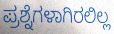
ಪ್ರಶ್ನೆಗಳಾಗಿರಲಿಲ್ಲ